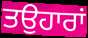
ਤਉਹਾਰਾਂ